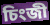
চিংজী